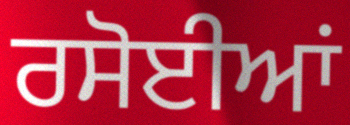
ਰਸੋਈਆਂ